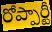
రోప్పార్టీ